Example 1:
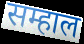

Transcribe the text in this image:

सम्हाल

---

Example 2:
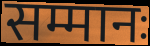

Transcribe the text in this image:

सम्मानः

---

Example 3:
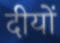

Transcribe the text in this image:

दीयों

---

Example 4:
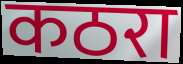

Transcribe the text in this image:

कठरा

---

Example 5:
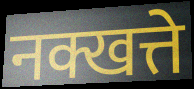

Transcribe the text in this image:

नक्खत्ते